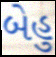
બેહુ